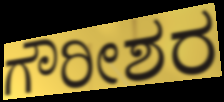
ಗೌರೀಶರ